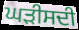
ਘੜੀਸਦੀ